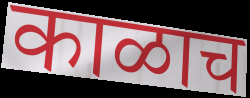
काळाच